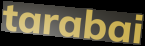
tarabai